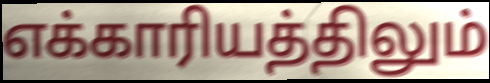
எக்காரியத்திலும்